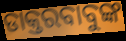
ଡାକ୍ତରବାବୁଙ୍କ